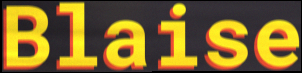
Blaise